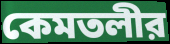
কেমতলীর